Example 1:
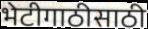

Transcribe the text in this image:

भेटीगाठीसाठी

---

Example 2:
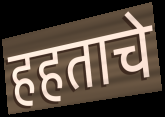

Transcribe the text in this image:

हहताचे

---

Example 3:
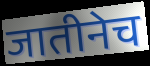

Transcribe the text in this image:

जातीनेच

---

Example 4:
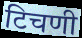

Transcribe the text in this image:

टिचणी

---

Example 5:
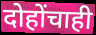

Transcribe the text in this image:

दोहोंचाही